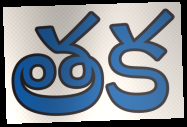
తక